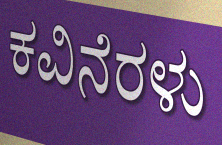
ಕವಿನೆರಳು